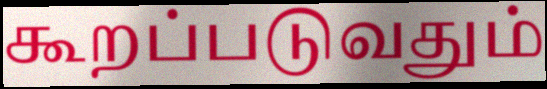
கூறப்படுவதும்